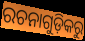
ରଚନାଗୁଡ଼ିକରୁ